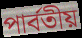
পার্বতীয়